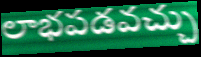
లాభపడవచ్చు